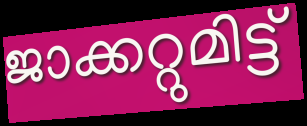
ജാക്കറ്റുമിട്ട്